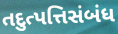
તદુત્પત્તિસંબંધ